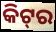
କିଟ୍‌ର